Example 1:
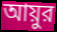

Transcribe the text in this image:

আয়ুর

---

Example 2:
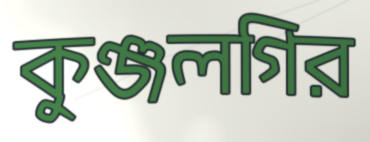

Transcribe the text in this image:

কুঞ্জলগির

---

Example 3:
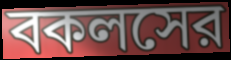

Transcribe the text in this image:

বকলসের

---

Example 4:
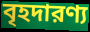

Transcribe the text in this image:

বৃহদারণ্য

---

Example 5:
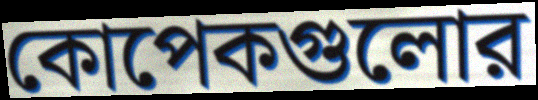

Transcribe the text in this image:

কোপেকগুলোর